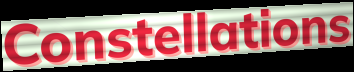
Constellations